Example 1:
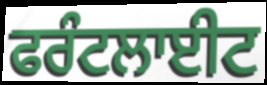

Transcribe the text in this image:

ਫਰੰਟਲਾਈਟ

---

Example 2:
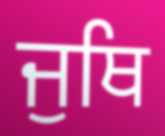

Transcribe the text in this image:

ਜੁਥਿ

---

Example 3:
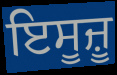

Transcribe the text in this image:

ਇਸੂਜ਼ੂ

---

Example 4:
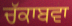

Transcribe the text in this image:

ਚੱਕਾਬਵਾ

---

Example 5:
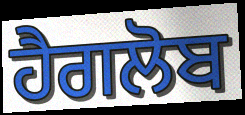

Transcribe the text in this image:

ਹੈਗਲੋਬ